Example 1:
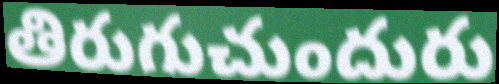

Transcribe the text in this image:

తిరుగుచుందురు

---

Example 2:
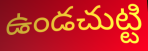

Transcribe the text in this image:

ఉండచుట్టి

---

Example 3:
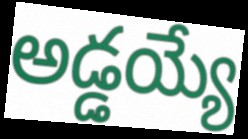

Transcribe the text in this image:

అడ్డయ్యే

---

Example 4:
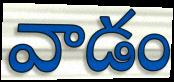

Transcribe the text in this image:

వాడం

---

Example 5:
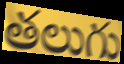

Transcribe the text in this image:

తలుగు